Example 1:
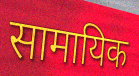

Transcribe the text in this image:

सामायिक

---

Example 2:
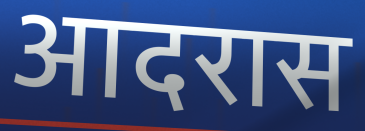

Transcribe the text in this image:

आदरास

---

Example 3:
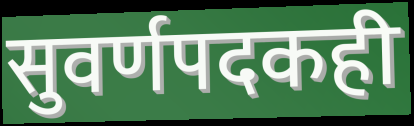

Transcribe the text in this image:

सुवर्णपदकही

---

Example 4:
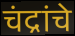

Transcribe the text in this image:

चंद्रांचे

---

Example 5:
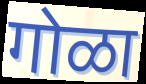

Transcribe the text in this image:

गोळा